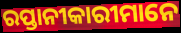
ରପ୍ତାନୀକାରୀମାନେ